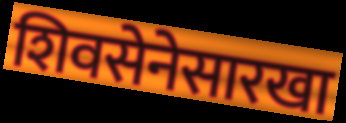
शिवसेनेसारखा